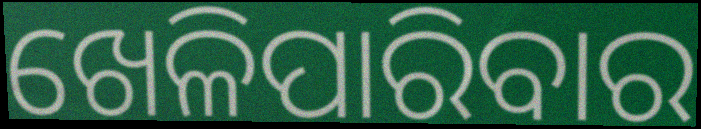
ଖେଳିପାରିବାର